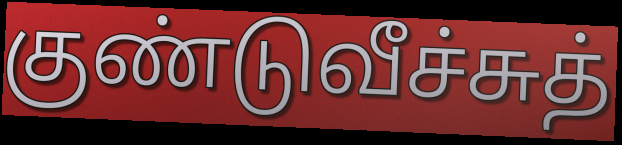
குண்டுவீச்சுத்